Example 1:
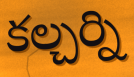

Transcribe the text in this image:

కల్చర్ని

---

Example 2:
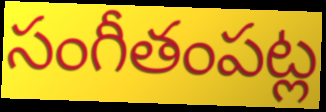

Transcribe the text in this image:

సంగీతంపట్ల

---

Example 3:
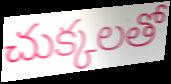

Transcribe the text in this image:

చుక్కలతో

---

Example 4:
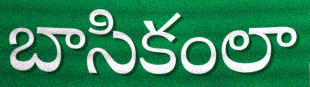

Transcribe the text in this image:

బాసికంలా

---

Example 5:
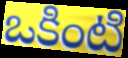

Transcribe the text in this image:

ఒకింటి